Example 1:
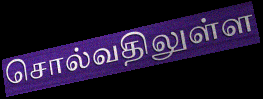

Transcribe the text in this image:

சொல்வதிலுள்ள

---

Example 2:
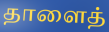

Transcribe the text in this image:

தாளைத்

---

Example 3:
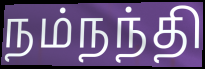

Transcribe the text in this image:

நம்நந்தி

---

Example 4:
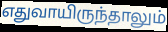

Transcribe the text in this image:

எதுவாயிருந்தாலும்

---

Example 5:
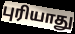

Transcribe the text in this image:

புரியாது